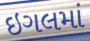
ઇગલમાં